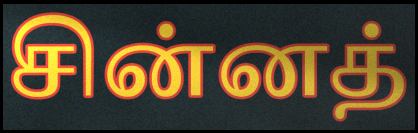
சின்னத்